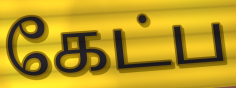
கேட்ப